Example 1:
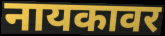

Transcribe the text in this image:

नायकावर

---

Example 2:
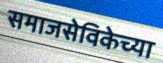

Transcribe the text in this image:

समाजसेविकेच्या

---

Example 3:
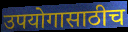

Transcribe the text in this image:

उपयोगासाठीच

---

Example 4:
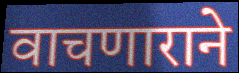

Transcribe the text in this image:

वाचणाराने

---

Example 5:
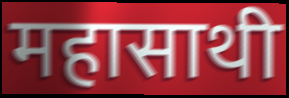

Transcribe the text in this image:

महासाथी